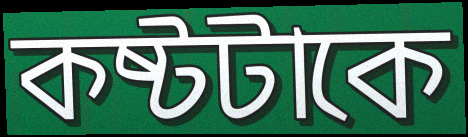
কষ্টটাকে